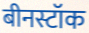
बीनस्टॉक